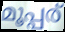
മൂപ്പര്